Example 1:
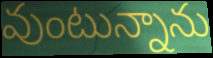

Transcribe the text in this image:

వుంటున్నాను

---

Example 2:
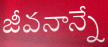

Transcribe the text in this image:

జీవనాన్నే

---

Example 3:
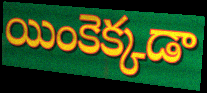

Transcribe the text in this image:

యింకెక్కడా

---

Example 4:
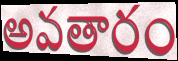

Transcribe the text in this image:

అవతారం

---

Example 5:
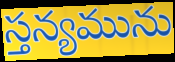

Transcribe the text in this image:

స్తన్యమును